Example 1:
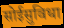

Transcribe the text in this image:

सोईसुविधा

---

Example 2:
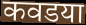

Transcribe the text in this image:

कवडया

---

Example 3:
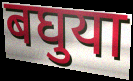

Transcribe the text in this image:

बघुया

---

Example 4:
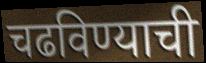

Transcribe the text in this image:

चढविण्याची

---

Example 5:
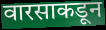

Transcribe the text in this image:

वारसाकडून